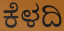
ಕೆಳದಿ